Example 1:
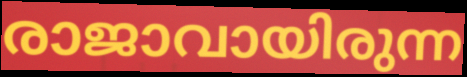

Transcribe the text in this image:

രാജാവായിരുന്ന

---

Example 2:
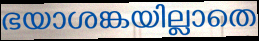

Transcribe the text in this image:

ഭയാശങ്കയില്ലാതെ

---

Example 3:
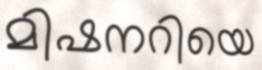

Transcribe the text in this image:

മിഷനറിയെ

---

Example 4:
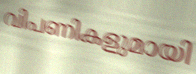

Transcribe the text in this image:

വിപണികളുമായി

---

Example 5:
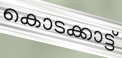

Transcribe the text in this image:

കൊടക്കാട്ട്